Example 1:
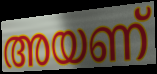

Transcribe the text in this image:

അയണ്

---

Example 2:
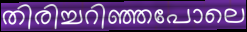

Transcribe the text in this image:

തിരിച്ചറിഞ്ഞപോലെ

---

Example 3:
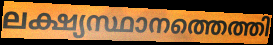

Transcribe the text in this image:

ലക്ഷ്യസ്ഥാനത്തെത്തി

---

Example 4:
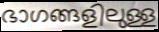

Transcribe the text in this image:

ഭാഗങ്ങളിലുള്ള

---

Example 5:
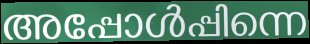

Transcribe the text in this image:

അപ്പോൾപ്പിന്നെ